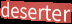
deserter